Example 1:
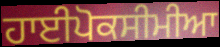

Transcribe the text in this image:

ਹਾਈਪੋਕਸੀਮੀਆ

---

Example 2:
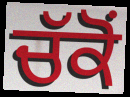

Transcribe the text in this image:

ਚੱਕੋਂ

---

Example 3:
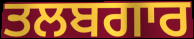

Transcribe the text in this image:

ਤਲਬਗਾਰ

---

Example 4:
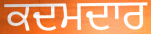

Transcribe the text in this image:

ਕਦਮਦਾਰ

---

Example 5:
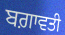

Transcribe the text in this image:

ਬਗ਼ਾਵਤੀ